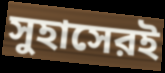
সুহাসেরই